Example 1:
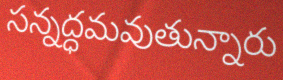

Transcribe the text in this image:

సన్నద్ధమవుతున్నారు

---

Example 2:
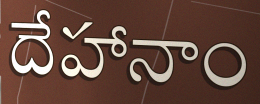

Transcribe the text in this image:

దేహానాం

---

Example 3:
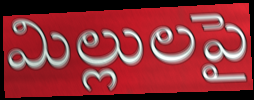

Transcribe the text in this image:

మిల్లులపై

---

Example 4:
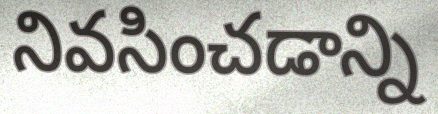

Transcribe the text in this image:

నివసించడాన్ని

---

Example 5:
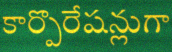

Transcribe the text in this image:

కార్పొరేషన్లుగా